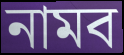
নামব